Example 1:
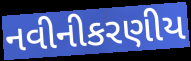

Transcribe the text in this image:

નવીનીકરણીય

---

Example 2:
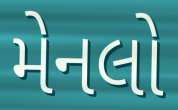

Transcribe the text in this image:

મેનલો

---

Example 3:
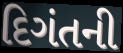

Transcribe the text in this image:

દિગંતની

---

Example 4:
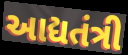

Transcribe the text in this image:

આદ્યતંત્રી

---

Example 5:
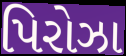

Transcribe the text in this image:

પિરોઝા